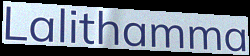
Lalithamma